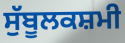
ਸੁੱਬੂਲਕਸ਼ਮੀ